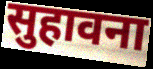
सुहावना